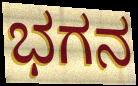
ಭಗನ